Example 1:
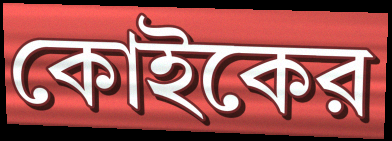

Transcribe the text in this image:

কোইকের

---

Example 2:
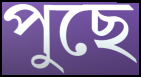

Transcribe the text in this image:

পুছে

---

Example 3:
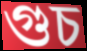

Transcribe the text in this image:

গুচ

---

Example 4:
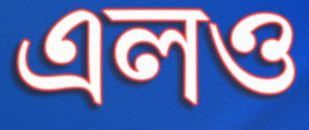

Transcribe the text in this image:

এলও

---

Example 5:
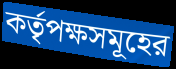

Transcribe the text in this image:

কর্তৃপক্ষসমূহের